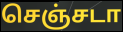
செஞ்சடா